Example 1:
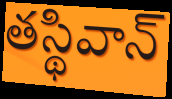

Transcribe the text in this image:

తస్థివాన్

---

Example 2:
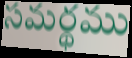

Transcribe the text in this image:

సమర్థము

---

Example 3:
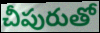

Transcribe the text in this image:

చీపురుతో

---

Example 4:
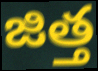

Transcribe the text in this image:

జిత్త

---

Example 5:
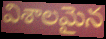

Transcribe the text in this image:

విశాలమైన